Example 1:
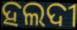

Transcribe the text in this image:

ହଲଦୀ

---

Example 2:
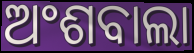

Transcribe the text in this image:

ଅଂଶବାଲା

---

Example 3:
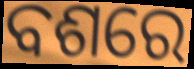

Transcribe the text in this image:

ବଶରେ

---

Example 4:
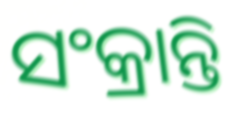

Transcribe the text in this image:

ସଂକ୍ରାନ୍ତି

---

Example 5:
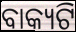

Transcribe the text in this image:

ବାକ୍ୟଟି